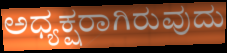
ಅಧ್ಯಕ್ಷರಾಗಿರುವುದು